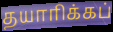
தயாரிக்கப்